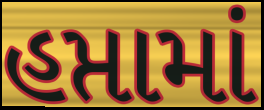
હપ્તામાં